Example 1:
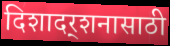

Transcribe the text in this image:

दिशादर्शनासाठी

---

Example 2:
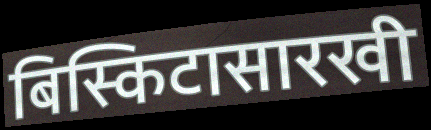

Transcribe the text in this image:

बिस्किटासारखी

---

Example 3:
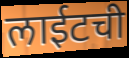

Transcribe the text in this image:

लाईटची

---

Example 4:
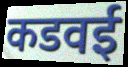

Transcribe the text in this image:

कडवई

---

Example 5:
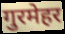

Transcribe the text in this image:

गुरमेहर